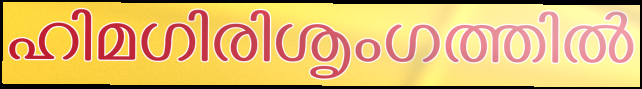
ഹിമഗിരിശൃംഗത്തിൽ